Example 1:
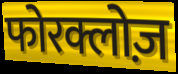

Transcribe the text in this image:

फोरक्लोज़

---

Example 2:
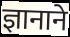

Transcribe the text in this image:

ज्ञानाने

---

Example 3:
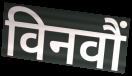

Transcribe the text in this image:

विनवौं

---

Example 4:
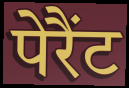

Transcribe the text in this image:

पेरैंट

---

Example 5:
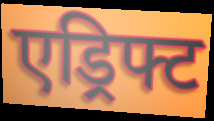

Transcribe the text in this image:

एड्रिफ्ट